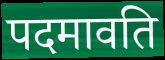
पदमावति